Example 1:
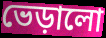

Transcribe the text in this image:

ভেড়ালো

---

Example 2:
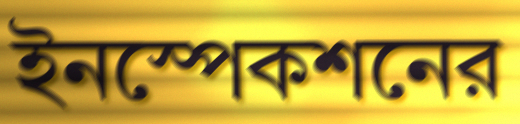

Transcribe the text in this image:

ইনস্পেকশনের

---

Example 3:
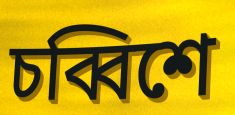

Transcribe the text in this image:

চব্বিশে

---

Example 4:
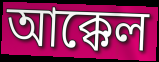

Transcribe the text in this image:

আক্কেল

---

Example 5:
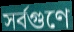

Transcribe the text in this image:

সর্বগুণে